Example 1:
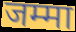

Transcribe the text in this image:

जम्मा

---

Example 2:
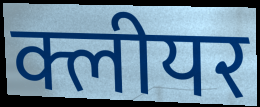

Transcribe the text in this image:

क्लीयर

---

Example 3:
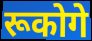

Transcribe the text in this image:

रूकोगे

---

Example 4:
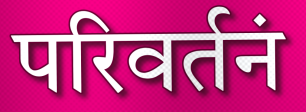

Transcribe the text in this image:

परिवर्तनं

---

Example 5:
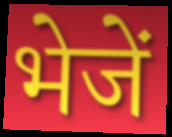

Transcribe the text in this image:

भेजें